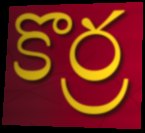
కొర్ర